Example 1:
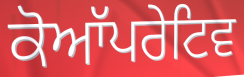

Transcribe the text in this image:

ਕੋਆੱਪਰੇਟਿਵ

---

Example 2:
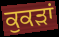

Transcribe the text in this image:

ਕੁਕੜਾਂ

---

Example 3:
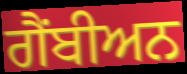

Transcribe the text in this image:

ਗੈਂਬੀਅਨ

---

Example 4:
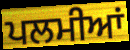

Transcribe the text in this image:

ਪਲਮੀਆਂ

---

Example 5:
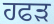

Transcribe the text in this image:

ਹਫੜ